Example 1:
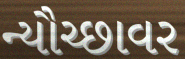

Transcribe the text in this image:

ન્યૌચ્છાવર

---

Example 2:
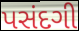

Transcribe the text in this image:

પસંદગી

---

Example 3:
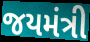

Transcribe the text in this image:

જયમંત્રી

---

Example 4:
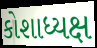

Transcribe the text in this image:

કોશાધ્યક્ષ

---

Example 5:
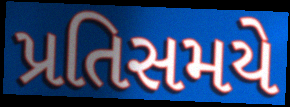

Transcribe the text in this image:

પ્રતિસમયે